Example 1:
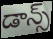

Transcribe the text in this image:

డాన్స్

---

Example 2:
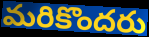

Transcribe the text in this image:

మరికొందరు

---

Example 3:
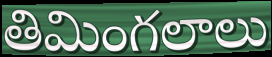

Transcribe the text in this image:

తిమింగలాలు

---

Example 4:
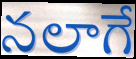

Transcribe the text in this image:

నలాగే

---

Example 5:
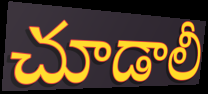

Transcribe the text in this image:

చూడాలీ